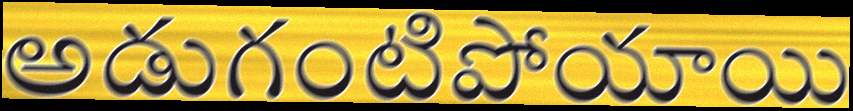
అడుగంటిపోయాయి